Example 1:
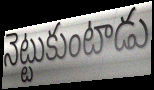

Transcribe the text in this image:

నెట్టుకుంటాడు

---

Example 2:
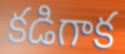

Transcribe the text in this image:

కడిగాక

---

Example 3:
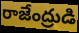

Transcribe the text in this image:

రాజేంద్రుడి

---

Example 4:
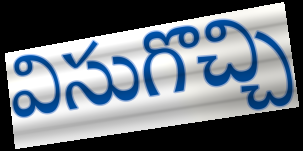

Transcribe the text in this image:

విసుగొచ్చి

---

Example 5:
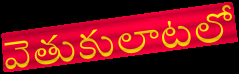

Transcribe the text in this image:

వెతుకులాటలో